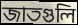
জাতগুলি